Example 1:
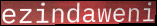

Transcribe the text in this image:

ezindaweni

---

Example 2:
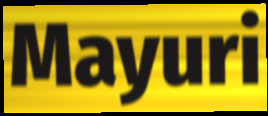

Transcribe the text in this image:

Mayuri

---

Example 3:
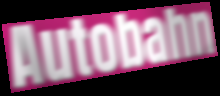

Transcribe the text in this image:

Autobahn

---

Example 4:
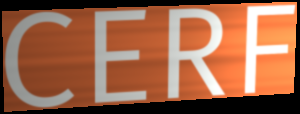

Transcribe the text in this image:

CERF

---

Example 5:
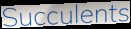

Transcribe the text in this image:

Succulents